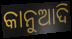
କାନୁଆଦି